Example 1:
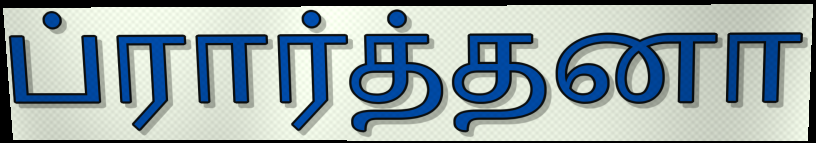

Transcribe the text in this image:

ப்ரார்த்தனா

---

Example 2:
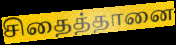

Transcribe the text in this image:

சிதைத்தானை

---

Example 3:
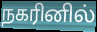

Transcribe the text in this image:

நகரினில்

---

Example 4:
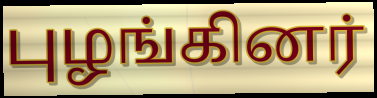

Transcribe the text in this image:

புழங்கினர்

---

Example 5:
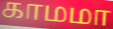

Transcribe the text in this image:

காமமா